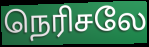
நெரிசலே